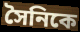
সৈনিকে